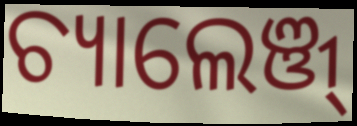
ଚ୍ୟାଲେଞ୍ଜ୍